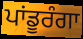
ਪਾਂਡੂਰੰਗਾ